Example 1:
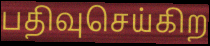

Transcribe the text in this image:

பதிவுசெய்கிற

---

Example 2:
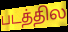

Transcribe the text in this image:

படத்தில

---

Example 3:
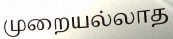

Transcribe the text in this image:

முறையல்லாத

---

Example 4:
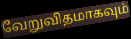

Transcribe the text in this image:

வேறுவிதமாகவும்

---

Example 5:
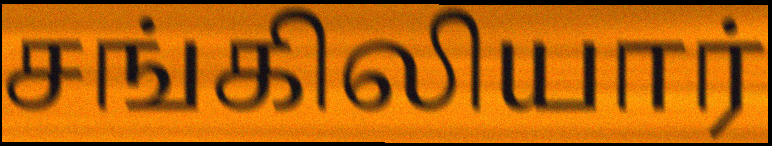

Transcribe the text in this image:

சங்கிலியார்